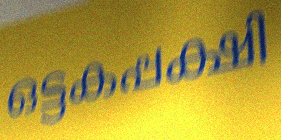
ഒട്ടകപ്പക്ഷി